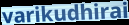
varikudhirai